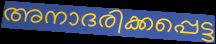
അനാദരിക്കപ്പെട്ട